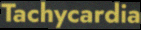
Tachycardia